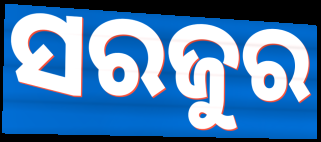
ସରଜୁର